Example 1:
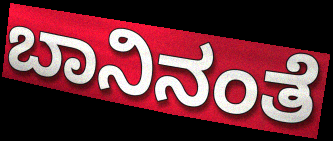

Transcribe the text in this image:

ಬಾನಿನಂತೆ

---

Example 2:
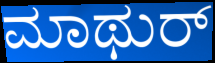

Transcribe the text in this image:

ಮಾಥುರ್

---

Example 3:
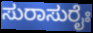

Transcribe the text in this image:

ಸುರಾಸುರೈಃ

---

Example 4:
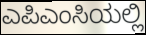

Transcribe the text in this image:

ಎಪಿಎಂಸಿಯಲ್ಲಿ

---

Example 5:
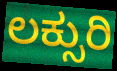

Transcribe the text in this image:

ಲಕ್ಸುರಿ